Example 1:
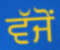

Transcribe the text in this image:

ਵੱਜੋਂ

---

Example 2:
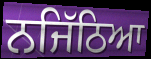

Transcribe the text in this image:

ਨਜਿੱਠਿਆ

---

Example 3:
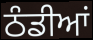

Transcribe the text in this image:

ਠੰਡੀਆਂ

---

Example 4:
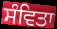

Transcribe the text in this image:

ਸੰਵਿਤਾ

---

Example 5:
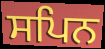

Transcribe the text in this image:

ਸਪਿਨ